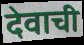
देवाची